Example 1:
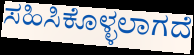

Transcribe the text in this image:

ಸಹಿಸಿಕೊಳ್ಳಲಾಗದೆ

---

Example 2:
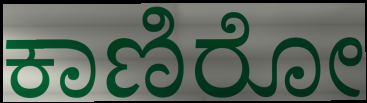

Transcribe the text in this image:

ಕಾಣಿರೋ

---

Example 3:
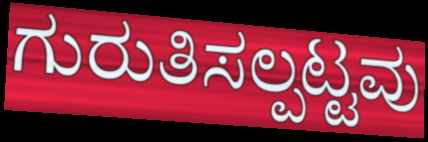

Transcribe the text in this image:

ಗುರುತಿಸಲ್ಪಟ್ಟವು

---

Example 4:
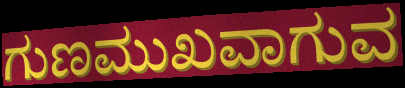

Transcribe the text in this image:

ಗುಣಮುಖವಾಗುವ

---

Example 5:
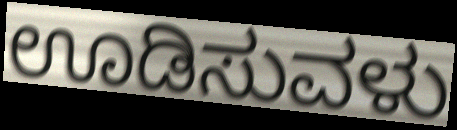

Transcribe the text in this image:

ಊಡಿಸುವಳು